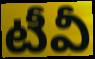
టీవీ